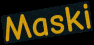
Maski